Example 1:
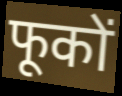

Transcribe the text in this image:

फूकों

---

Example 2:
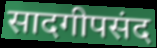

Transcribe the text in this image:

सादगीपसंद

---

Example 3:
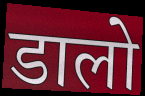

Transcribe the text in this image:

डालो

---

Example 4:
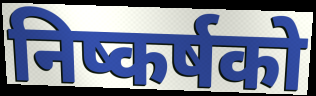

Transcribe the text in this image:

निष्कर्षको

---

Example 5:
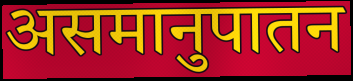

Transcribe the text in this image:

असमानुपातन